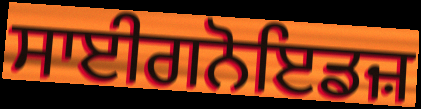
ਸਾਈਗਨੋਇਡਜ਼